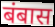
बंबास